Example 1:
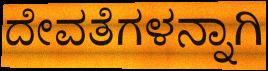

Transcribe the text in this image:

ದೇವತೆಗಳನ್ನಾಗಿ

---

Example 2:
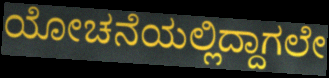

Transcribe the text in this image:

ಯೋಚನೆಯಲ್ಲಿದ್ದಾಗಲೇ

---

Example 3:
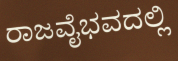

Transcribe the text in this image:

ರಾಜವೈಭವದಲ್ಲಿ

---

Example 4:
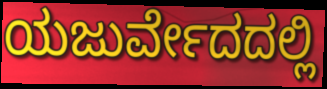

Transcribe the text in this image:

ಯಜುರ್ವೇದದಲ್ಲಿ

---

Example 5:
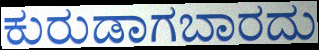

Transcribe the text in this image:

ಕುರುಡಾಗಬಾರದು